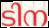
ടിന